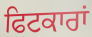
ਫਿਟਕਾਰਾਂ